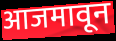
आजमावून